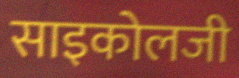
साइकोलजी